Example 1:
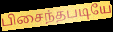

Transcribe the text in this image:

பிசைந்தபடியே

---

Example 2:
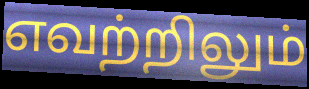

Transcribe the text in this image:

எவற்றிலும்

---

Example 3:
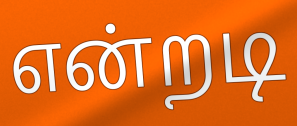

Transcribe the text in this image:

என்றடி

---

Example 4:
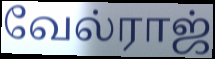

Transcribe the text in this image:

வேல்ராஜ்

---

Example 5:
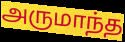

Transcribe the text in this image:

அருமாந்த